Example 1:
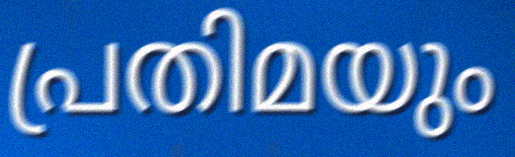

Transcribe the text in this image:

പ്രതിമയും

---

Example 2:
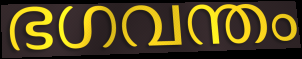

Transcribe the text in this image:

ഭഗവന്തം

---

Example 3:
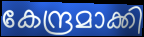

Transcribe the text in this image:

കേന്ദ്രമാക്കി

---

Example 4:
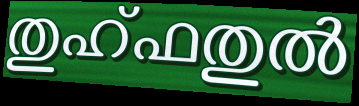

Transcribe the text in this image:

തുഹ്ഫതുൽ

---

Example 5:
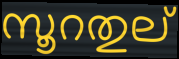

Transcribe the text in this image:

സൂറതുല്